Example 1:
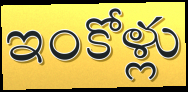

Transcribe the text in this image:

ఇంకోళ్లు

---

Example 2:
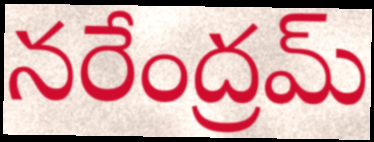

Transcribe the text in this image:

నరేంద్రమ్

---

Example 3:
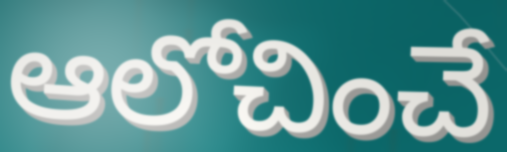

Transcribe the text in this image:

ఆలోచించే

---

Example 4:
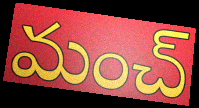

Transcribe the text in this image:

మంచ్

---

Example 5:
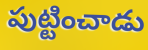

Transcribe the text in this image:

పుట్టించాడు